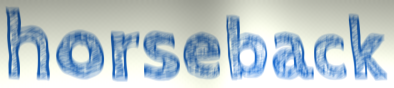
horseback